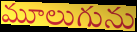
మూలుగును